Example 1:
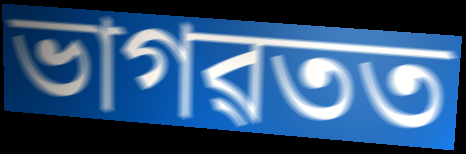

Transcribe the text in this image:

ভাগৱতত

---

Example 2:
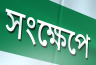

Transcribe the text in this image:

সংক্ষেপে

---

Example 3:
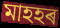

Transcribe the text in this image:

মাহহৰ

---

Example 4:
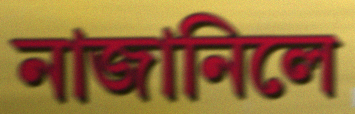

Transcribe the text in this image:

নাজানিলে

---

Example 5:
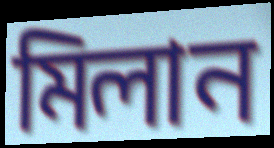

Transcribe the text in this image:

মিলান